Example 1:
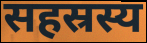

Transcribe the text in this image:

सहस्रस्य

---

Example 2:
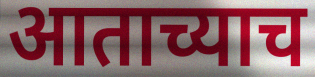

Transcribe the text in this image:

आताच्याच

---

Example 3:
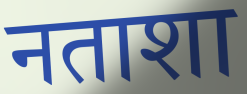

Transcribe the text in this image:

नताशा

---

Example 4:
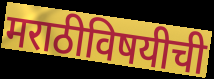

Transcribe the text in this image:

मराठीविषयीची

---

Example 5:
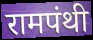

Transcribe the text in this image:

रामपंथी